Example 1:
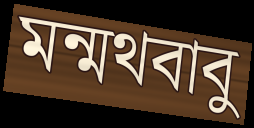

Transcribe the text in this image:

মন্মথবাবু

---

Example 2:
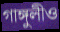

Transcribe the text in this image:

গাঙ্গুলীও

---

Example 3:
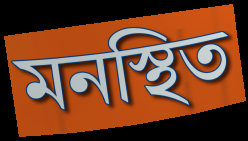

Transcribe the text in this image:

মনস্থিত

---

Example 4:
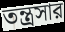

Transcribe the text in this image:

তন্ত্রসার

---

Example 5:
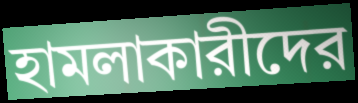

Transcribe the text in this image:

হামলাকারীদের